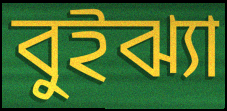
বুইঝ্যা